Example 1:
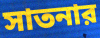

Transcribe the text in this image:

সাতনার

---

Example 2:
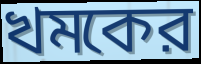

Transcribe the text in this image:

খমকের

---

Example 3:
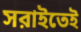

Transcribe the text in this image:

সরাইতেই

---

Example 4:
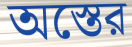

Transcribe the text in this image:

অস্তের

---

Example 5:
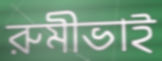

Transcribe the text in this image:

রুমীভাই